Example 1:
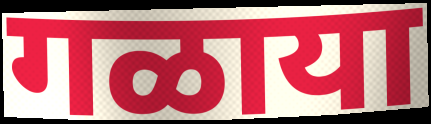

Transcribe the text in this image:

गळाया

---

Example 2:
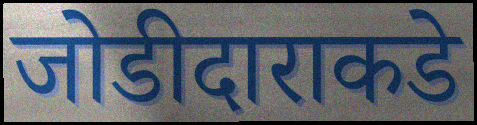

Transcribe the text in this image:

जोडीदाराकडे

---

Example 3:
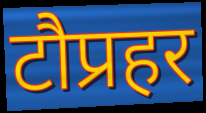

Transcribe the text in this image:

टौप्रहर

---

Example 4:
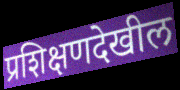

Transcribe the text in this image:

प्रशिक्षणदेखील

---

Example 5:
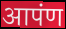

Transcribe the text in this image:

आपंण